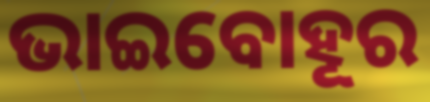
ଭାଇବୋହୂର